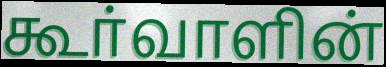
கூர்வாளின்